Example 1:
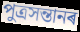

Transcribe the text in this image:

পুত্ৰসন্তানৰ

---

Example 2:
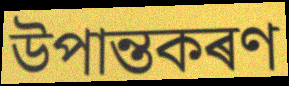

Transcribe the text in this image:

উপান্তকৰণ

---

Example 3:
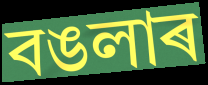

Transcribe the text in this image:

বঙলাৰ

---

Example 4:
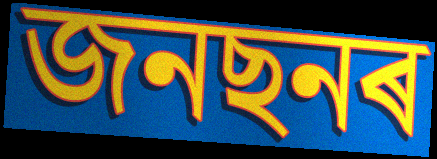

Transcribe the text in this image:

জনছনৰ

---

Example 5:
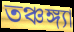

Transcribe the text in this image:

তঞ্চঙ্গ্যা